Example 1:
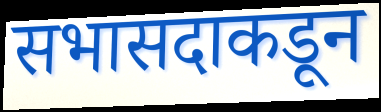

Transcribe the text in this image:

सभासदाकडून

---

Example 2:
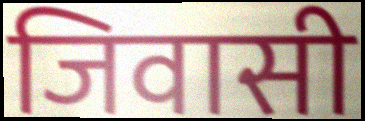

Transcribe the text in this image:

जिवासी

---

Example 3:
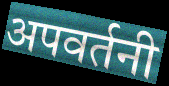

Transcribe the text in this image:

अपवर्तनी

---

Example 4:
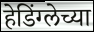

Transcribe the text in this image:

हेडिंग्लेच्या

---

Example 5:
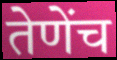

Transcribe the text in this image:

तेणेंच